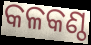
କଳକଣ୍ଠ